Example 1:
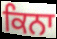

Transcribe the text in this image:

ਕਿਨਾ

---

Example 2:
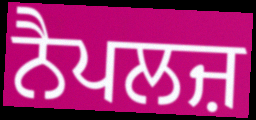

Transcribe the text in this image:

ਨੈਪਲਜ਼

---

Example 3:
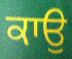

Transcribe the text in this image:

ਕਾਉ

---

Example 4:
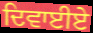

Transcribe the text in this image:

ਦਿਵਾਈਏ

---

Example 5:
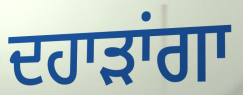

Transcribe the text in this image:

ਦਹਾੜਾਂਗਾ